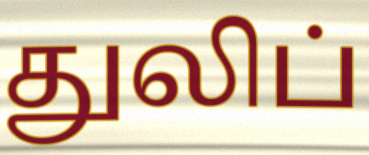
துலிப்